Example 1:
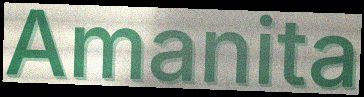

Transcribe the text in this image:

Amanita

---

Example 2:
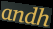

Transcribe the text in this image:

andh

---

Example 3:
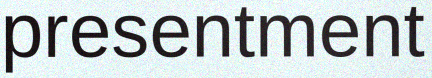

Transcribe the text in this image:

presentment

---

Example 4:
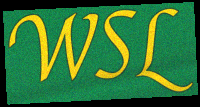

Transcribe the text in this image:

WSL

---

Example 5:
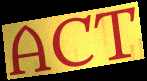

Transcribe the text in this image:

ACT